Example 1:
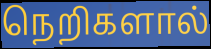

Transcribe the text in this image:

நெறிகளால்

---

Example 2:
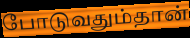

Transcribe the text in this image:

போடுவதும்தான்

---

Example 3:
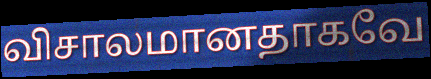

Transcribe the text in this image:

விசாலமானதாகவே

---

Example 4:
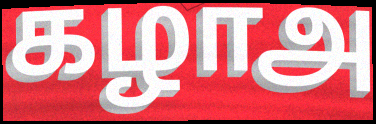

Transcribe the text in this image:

கழாஅ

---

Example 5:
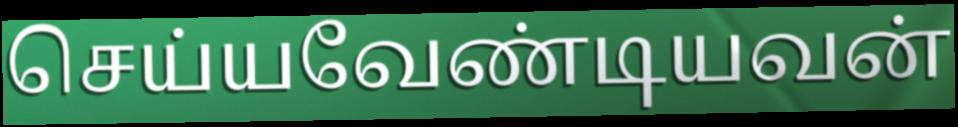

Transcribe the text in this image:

செய்யவேண்டியவன்